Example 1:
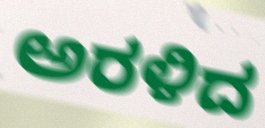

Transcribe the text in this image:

ಅರಳಿದ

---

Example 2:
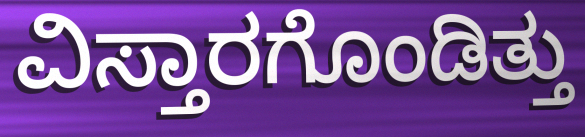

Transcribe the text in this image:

ವಿಸ್ತಾರಗೊಂಡಿತ್ತು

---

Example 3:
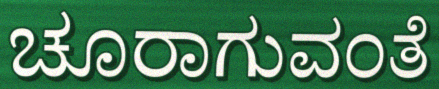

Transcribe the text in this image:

ಚೂರಾಗುವಂತೆ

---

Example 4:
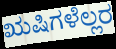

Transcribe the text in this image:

ಋಷಿಗಳೆಲ್ಲರ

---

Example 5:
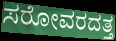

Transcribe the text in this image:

ಸರೋವರದತ್ತ